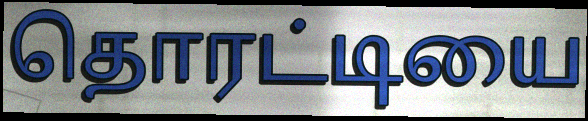
தொரட்டியை